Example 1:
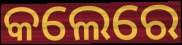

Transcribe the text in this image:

କଲେରେ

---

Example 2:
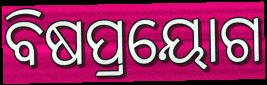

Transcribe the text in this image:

ବିଷପ୍ରୟୋଗ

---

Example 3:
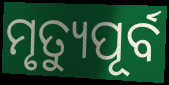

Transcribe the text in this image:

ମୃତ୍ୟୁପୂର୍ବ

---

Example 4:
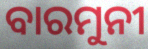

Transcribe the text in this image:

ବାରମୁନୀ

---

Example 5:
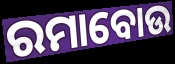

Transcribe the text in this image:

ରମାବୋଉ